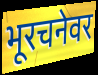
भूरचनेवर